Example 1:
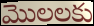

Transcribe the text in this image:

మొలలకు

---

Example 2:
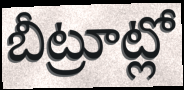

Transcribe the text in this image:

బీట్రూట్లో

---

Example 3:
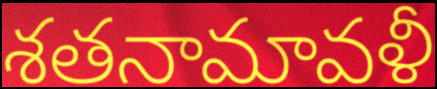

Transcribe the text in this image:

శతనామావళీ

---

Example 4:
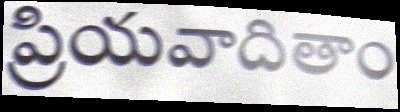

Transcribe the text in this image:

ప్రియవాదితాం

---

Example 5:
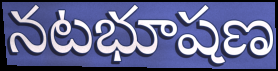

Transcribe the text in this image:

నటభూషణ